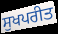
ਸੁਖਪਰੀਤ